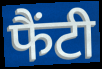
फैंटी